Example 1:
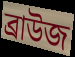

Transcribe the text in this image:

ব্রাউজ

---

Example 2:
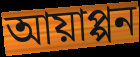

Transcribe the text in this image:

আয়াপ্পন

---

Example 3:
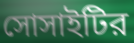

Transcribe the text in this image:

সোসাইটির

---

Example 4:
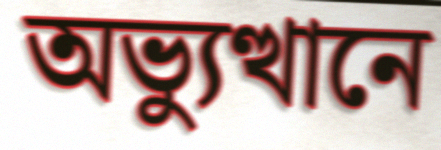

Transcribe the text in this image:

অভ্যুত্থানে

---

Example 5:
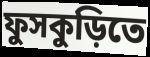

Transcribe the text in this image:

ফুসকুড়িতে